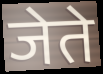
जेते